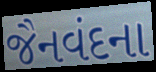
જૈનવંદના